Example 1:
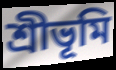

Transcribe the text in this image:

শ্রীভূমি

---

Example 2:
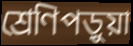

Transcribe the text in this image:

শ্রেণিপড়ুয়া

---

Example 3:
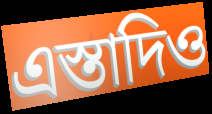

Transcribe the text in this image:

এস্তাদিও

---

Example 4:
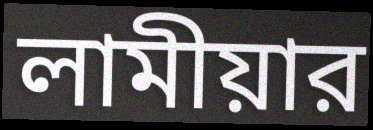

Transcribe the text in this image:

লামীয়ার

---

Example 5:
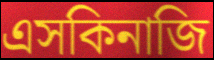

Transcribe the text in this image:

এসকিনাজি